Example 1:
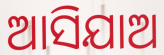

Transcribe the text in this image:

ଆସିଯାଅ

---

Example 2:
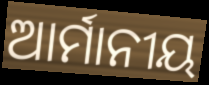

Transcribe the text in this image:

ଆର୍ମାନୀୟ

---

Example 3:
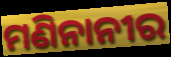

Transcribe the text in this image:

ମଣିନାନୀର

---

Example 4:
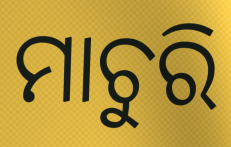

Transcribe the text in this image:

ମାଚୁରି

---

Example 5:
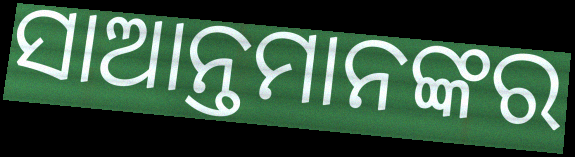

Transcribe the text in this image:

ସାଆନ୍ତମାନଙ୍କର